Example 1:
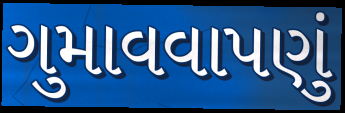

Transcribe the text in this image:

ગુમાવવાપણું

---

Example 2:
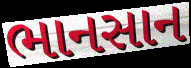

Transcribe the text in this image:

ભાનસાન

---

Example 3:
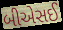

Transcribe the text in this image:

બીએસઈ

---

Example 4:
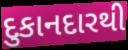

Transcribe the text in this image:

દુકાનદારથી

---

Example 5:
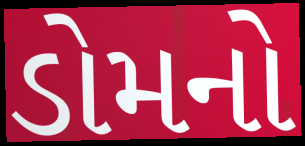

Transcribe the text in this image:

ડોમનો